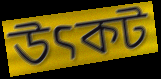
উৎকট